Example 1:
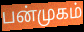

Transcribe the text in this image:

பன்முகம்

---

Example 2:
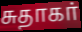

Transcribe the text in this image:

சுதாகர்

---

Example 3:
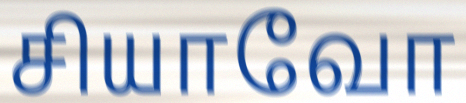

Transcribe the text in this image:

சியாவோ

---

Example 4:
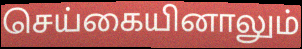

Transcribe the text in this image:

செய்கையினாலும்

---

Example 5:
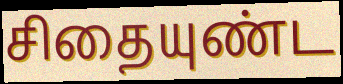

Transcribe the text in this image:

சிதையுண்ட